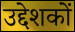
उद्देशकों